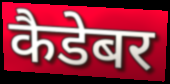
कैडेबर